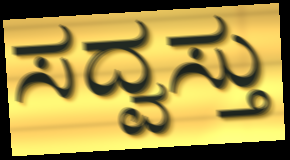
ಸದ್ವಸ್ತು